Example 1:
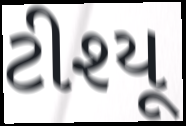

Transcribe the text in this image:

ટીશ્યૂ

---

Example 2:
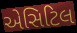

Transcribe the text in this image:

એસિટિલ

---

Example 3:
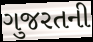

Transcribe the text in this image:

ગુજરતની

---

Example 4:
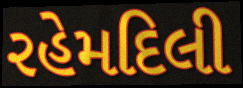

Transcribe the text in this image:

રહેમદિલી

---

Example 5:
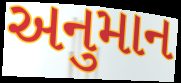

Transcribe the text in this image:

અનુમાન